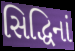
સિદ્ધિનાં